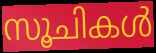
സൂചികൾ